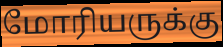
மோரியருக்கு